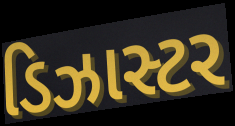
ડિઝાસ્ટર